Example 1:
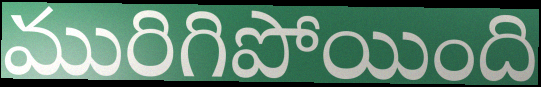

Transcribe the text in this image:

మురిగిపోయింది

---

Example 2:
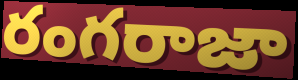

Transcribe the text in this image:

రంగరాజా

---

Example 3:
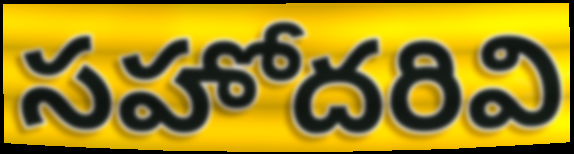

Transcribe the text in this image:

సహోదరివి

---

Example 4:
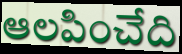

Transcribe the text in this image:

ఆలపించేది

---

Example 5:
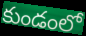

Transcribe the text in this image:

కుండంలో